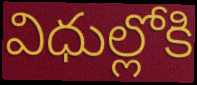
విధుల్లోకి